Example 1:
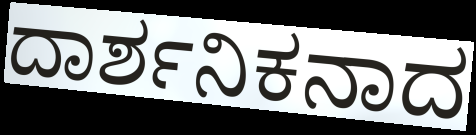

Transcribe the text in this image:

ದಾರ್ಶನಿಕನಾದ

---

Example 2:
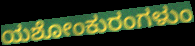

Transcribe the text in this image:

ಯಶೋಂಕುರಂಗಳುಂ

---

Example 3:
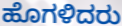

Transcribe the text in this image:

ಹೊಗಳಿದರು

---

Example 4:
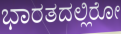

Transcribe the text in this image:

ಭಾರತದಲ್ಲಿರೋ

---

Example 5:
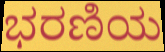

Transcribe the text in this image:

ಭರಣಿಯ